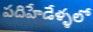
పదిహేడేళ్ళలో